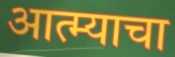
आत्म्याचा